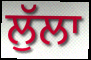
ਲੁੱਲਾ